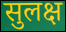
सुलक्ष